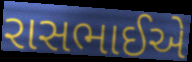
રાસભાઈએ